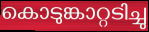
കൊടുങ്കാറ്റടിച്ചു